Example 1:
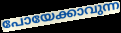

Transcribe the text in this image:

പോയേക്കാവുന്ന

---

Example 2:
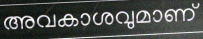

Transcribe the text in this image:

അവകാശവുമാണ്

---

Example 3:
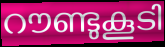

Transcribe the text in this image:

റൗണ്ടുകൂടി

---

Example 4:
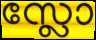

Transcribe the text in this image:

സ്ലോ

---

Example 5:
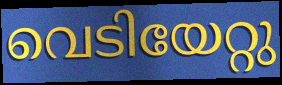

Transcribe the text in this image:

വെടിയേറ്റു